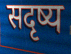
सदृष्य